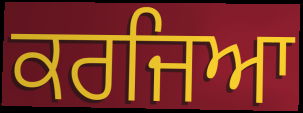
ਕਰਜਿਆ